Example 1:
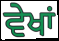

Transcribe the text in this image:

ਵੇਖਾਂ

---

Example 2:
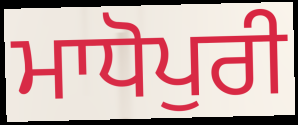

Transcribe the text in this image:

ਮਾਧੋਪੁਰੀ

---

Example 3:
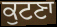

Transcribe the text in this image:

ਕੁਟਣਾ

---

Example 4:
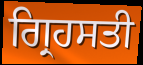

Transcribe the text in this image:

ਗ੍ਰਿਹਸਤੀ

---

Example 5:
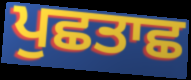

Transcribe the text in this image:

ਪੁਛਤਾਛ